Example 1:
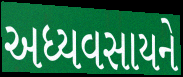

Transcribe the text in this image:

અધ્યવસાયને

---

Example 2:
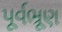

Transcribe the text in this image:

પૂર્વભ્રૂણ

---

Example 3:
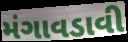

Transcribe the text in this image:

મંગાવડાવી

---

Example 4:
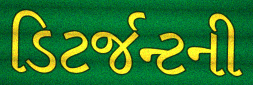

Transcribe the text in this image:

ડિટર્જન્ટની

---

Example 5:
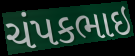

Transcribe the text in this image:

ચંપકભાઇ